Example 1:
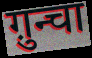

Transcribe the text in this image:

ग़ुन्चा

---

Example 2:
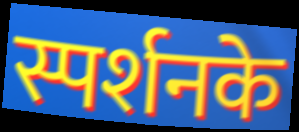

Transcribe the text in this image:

स्पर्शनके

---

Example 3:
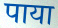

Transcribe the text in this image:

पाया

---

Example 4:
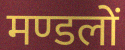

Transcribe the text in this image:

मण्‍डलों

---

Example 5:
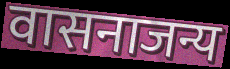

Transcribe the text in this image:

वासनाजन्य